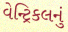
વેન્ટ્રિકલનું